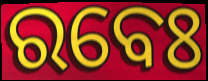
ରବେଃ